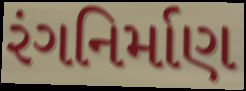
રંગનિર્માણ